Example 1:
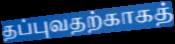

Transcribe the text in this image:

தப்புவதற்காகத்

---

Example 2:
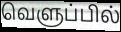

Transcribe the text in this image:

வெளுப்பில்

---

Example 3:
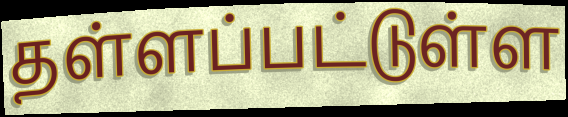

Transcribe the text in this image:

தள்ளப்பட்டுள்ள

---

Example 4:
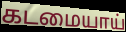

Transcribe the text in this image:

கடமையாய்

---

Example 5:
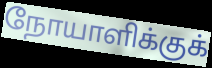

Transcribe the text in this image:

நோயாளிக்குக்